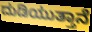
ದುಡಿಯುತ್ತಾನೆ